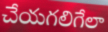
చేయగలిగేలా